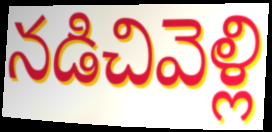
నడిచివెళ్లి